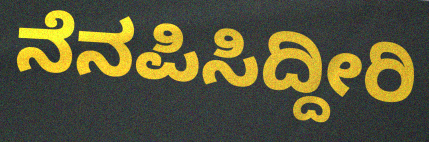
ನೆನಪಿಸಿದ್ದೀರಿ